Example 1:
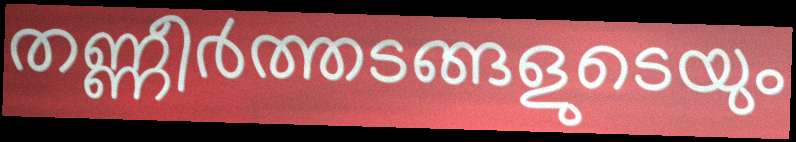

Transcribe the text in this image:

തണ്ണീർത്തടങ്ങളുടെയും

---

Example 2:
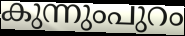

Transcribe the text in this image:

കുന്നുംപുറം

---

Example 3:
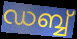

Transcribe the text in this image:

ഡബ്ബ്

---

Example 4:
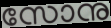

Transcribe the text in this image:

സോനു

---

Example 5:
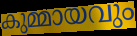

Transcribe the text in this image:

കുമ്മായവും